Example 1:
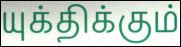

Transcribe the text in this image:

யுக்திக்கும்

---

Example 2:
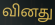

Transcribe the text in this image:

வினது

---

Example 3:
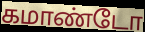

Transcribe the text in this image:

கமாண்டோ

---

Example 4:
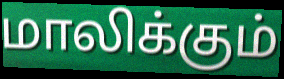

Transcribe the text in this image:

மாலிக்கும்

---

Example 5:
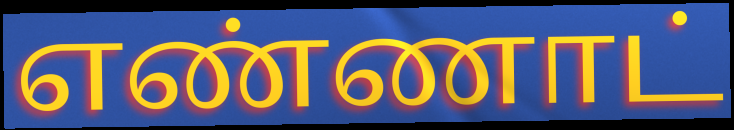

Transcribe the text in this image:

எண்ணாட்